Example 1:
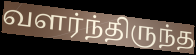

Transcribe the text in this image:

வளர்ந்திருந்த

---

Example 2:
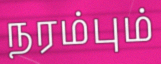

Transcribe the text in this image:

நரம்பும்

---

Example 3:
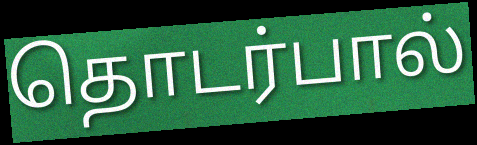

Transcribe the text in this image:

தொடர்பால்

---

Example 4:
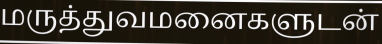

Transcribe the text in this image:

மருத்துவமனைகளுடன்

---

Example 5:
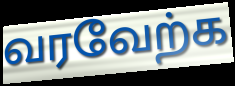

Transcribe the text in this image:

வரவேற்க